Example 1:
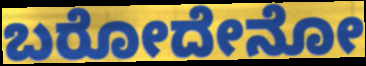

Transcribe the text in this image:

ಬರೋದೇನೋ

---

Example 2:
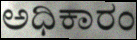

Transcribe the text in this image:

ಅಧಿಕಾರಂ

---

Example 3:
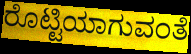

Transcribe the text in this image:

ರೊಟ್ಟಿಯಾಗುವಂತೆ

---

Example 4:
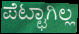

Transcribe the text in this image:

ಪೆಟ್ಟಾಗಿಲ್ಲ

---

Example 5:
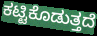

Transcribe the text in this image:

ಕಟ್ಟಿಕೊಡುತ್ತದೆ